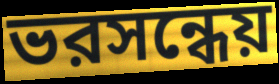
ভরসন্ধেয়